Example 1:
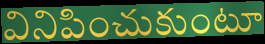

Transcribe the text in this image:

వినిపించుకుంటూ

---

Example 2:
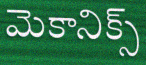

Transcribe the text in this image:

మెకానిక్స్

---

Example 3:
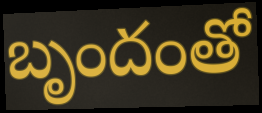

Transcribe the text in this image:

బృందంతో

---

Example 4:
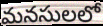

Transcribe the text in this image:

మనసులలో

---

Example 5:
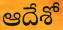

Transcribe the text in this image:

ఆదేశో